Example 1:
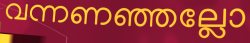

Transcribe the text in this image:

വന്നണഞ്ഞല്ലോ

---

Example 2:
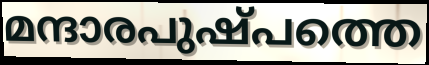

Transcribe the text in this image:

മന്ദാരപുഷ്പത്തെ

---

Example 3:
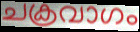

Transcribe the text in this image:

ചക്രവാഗം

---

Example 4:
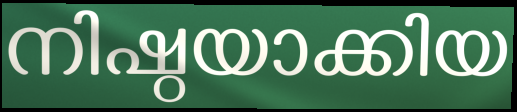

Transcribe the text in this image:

നിഷ്ഠയാക്കിയ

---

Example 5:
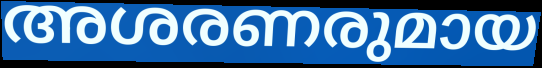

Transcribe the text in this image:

അശരണരുമായ